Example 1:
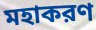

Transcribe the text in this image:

মহাকরণ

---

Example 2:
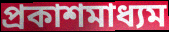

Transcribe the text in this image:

প্রকাশমাধ্যম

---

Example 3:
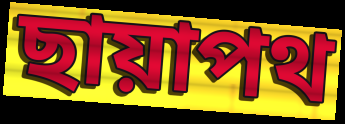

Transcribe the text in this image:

ছায়াপথ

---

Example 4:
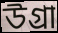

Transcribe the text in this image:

উগ্রা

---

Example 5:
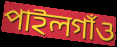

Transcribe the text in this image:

পাইলগাঁও